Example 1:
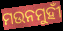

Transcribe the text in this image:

ମଉନମୁହୀଁ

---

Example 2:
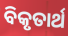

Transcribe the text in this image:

ବିକୃତାର୍ଥ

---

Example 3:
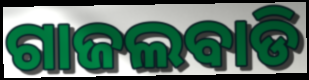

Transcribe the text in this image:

ଗାଜଲବାଡି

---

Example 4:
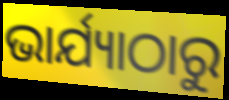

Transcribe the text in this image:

ଭାର୍ଯ୍ୟାଠାରୁ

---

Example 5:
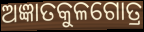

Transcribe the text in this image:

ଅଜ୍ଞାତକୁଳଗୋତ୍ର